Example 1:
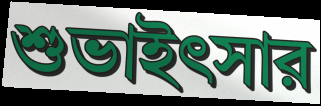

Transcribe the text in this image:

শুভাইৎসার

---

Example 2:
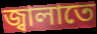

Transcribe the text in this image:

জ্বালাতে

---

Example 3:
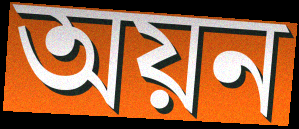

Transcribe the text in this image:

অয়ন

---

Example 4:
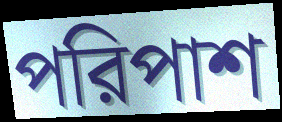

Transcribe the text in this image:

পরিপাশ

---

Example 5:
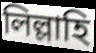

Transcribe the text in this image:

লিল্লাহি